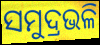
ସମୁଦ୍ରଭଳି